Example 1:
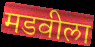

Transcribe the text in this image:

मडवीला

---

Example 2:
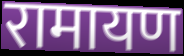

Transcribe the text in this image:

रामायण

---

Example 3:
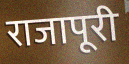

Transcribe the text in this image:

राजापूरी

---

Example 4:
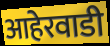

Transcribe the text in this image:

आहेरवाडी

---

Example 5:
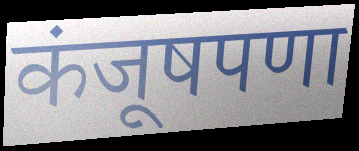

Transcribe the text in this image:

कंजूषपणा